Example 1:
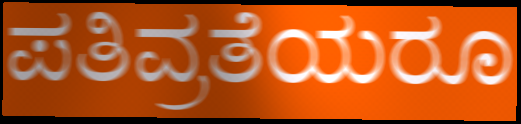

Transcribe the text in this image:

ಪತಿವ್ರತೆಯರೂ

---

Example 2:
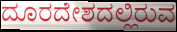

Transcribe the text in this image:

ದೂರದೇಶದಲ್ಲಿರುವ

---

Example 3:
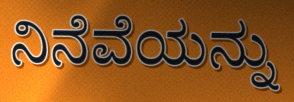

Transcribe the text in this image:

ನಿನೆವೆಯನ್ನು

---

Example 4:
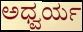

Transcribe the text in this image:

ಅಧ್ವರ್ಯ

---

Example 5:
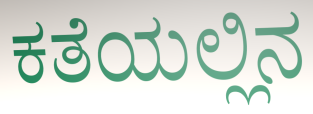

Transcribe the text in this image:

ಕತೆಯಲ್ಲಿನ